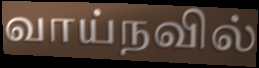
வாய்நவில்